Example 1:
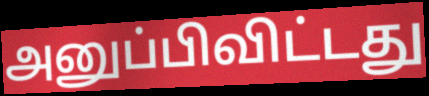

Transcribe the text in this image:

அனுப்பிவிட்டது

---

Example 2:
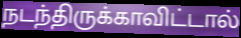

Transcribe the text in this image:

நடந்திருக்காவிட்டால்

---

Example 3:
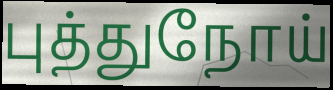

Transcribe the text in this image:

புத்துநோய்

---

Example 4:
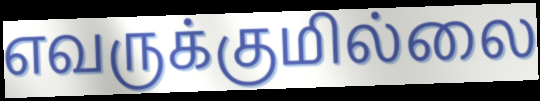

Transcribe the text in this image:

எவருக்குமில்லை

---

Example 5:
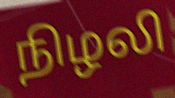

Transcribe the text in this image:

நிழலி